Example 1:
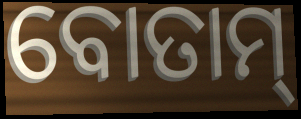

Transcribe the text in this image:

ବୋତାମ୍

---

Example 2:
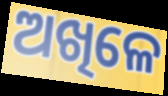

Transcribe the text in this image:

ଅଖିଳେ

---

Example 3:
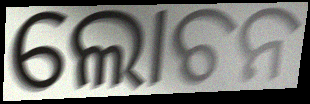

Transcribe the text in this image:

ଲୋଚନ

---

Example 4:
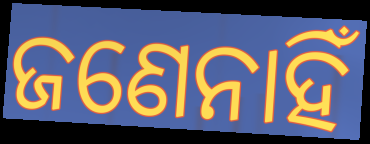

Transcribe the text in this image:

ଜଣେନାହିଁ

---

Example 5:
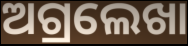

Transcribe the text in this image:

ଅଗ୍ରଲେଖା